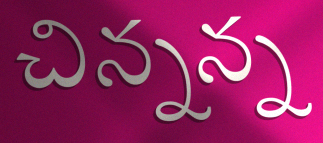
చిన్నన్న